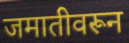
जमातीवरून